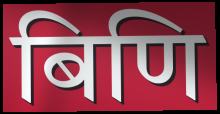
बिणि